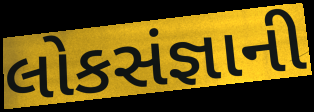
લોકસંજ્ઞાની